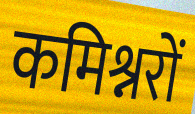
कमिश्नरों